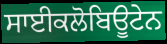
ਸਾਈਕਲੋਬਿਊਟੇਨ